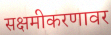
सक्षमीकरणावर